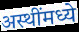
अस्थींमध्ये